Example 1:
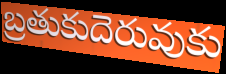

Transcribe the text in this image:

బ్రతుకుదెరువుకు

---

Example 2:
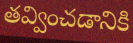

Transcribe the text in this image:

తవ్వించడానికి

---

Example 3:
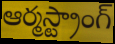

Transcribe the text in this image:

ఆర్మస్ట్రాంగ్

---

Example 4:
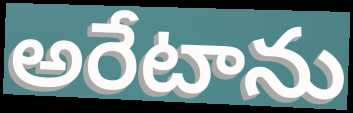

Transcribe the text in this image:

అరేటాను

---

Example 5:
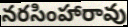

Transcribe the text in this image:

నరసింహారావు